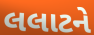
લલાટને